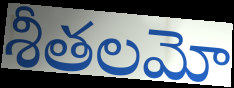
శీతలమో